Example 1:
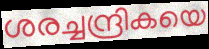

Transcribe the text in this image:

ശരച്ചന്ദ്രികയെ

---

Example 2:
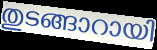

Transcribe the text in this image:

തുടങ്ങാറായി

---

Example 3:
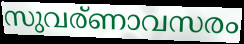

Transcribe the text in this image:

സുവര്ണാവസരം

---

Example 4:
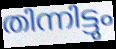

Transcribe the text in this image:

തിന്നിട്ടും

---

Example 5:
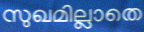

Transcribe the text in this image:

സുഖമില്ലാതെ